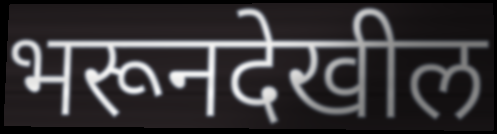
भरूनदेखील